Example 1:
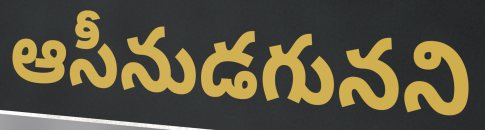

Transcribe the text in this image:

ఆసీనుడగునని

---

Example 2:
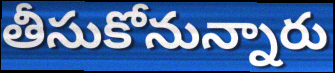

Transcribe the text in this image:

తీసుకోనున్నారు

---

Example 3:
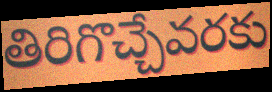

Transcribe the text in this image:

తిరిగొచ్చేవరకు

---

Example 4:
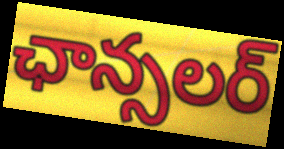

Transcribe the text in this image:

ఛాన్సలర్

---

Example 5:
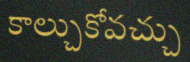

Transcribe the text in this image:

కాల్చుకోవచ్చు